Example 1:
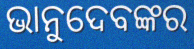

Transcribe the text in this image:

ଭାନୁଦେବଙ୍କର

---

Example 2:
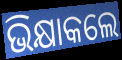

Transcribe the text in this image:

ଭିକ୍ଷାକଲେ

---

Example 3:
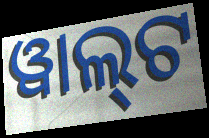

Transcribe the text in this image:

ୱାଲ୍‌ଟ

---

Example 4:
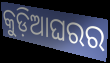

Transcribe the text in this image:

କୁଡ଼ିଆଘରର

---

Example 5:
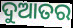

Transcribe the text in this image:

ଦୁଆତର